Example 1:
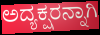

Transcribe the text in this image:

ಅದ್ಯಕ್ಷರನ್ನಾಗಿ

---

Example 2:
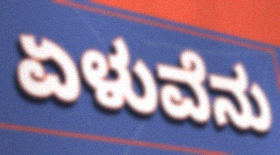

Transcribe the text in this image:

ಏಳುವೆನು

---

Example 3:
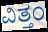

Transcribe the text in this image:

ವಿತ್ತಂ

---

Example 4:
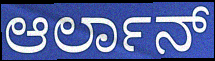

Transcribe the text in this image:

ಆರ್ಲಾನ್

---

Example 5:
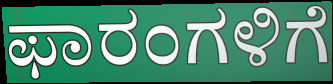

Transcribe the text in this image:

ಫಾರಂಗಳಿಗೆ